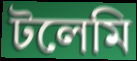
টলেমি